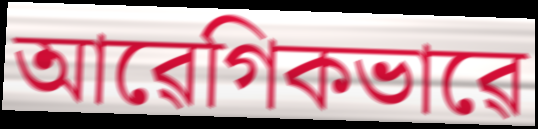
আৱেগিকভাৱে